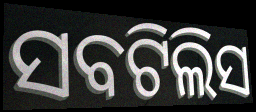
ସବଟିଲିସ